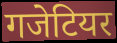
गजेटियर